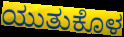
ಯುತುಕೊಳ